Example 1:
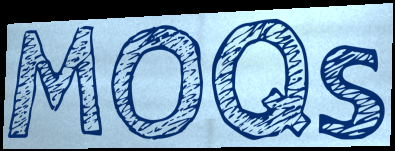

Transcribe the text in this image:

MOQs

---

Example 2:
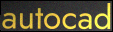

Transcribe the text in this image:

autocad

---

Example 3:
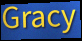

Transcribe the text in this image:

Gracy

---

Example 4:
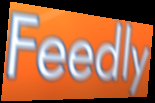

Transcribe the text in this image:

Feedly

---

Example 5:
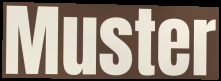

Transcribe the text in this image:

Muster